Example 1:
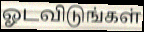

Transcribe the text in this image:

ஓடவிடுங்கள்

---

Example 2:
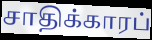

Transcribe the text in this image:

சாதிக்காரப்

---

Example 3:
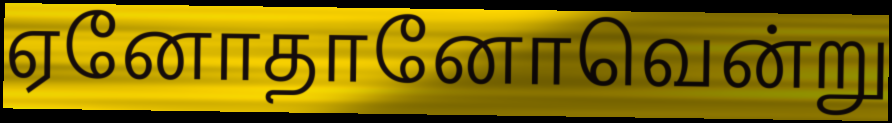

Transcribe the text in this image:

ஏனோதானோவென்று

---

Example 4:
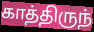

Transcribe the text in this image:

காத்திருந்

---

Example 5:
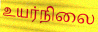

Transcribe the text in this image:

உயர்நிலை